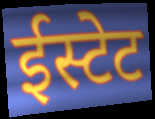
ईस्टेट